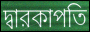
দ্বারকাপতি